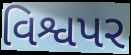
વિશ્વપર